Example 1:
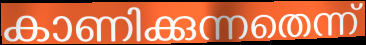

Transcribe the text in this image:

കാണിക്കുന്നതെന്ന്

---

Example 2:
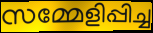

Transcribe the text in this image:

സമ്മേളിപ്പിച്ച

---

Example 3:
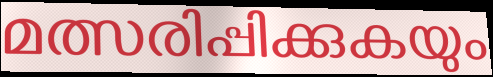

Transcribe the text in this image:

മത്സരിപ്പിക്കുകയും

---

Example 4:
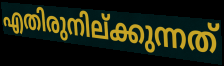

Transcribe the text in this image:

എതിരുനില്ക്കുന്നത്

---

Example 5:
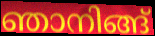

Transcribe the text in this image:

ഞാനിങ്ങ്